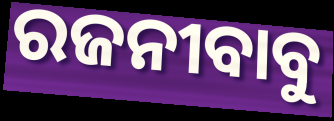
ରଜନୀବାବୁ